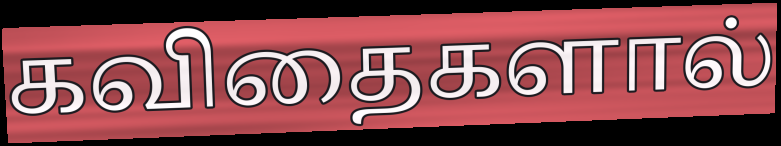
கவிதைகளால்